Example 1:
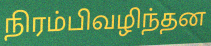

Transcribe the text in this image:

நிரம்பிவழிந்தன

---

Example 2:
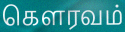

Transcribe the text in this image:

கெளரவம்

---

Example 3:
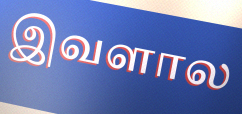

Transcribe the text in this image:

இவளால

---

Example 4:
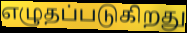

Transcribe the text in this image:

எழுதப்படுகிறது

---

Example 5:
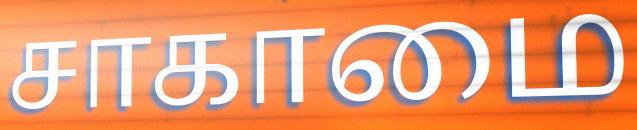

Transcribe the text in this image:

சாகாமை